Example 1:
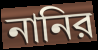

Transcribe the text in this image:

নানির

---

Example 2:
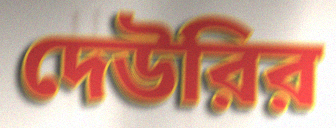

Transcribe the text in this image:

দেউরির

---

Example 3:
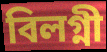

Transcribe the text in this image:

বিলগ্নী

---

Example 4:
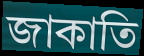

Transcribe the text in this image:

জাকাতি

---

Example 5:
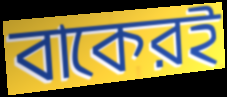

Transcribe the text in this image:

বাকেরই